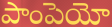
పాంపెయో